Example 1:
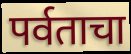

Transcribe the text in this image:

पर्वताचा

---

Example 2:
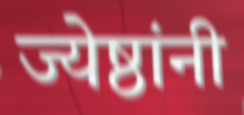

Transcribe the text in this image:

ज्येष्ठांनी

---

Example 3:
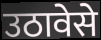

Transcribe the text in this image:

उठावेसे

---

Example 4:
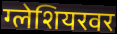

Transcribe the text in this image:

ग्लेशियरवर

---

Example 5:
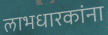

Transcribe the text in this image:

लाभधारकांना